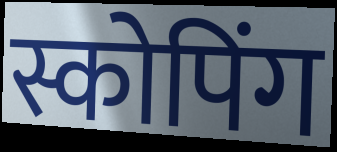
स्कोपिंग